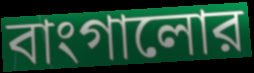
বাংগালোর